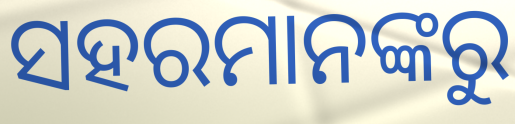
ସହରମାନଙ୍କରୁ